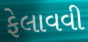
ફેલાવવી